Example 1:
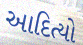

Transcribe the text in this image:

આદિત્યો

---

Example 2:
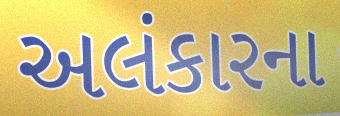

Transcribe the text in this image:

અલંકારના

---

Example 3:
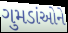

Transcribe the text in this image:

ગુમડાંઓને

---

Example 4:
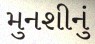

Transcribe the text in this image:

મુનશીનું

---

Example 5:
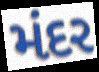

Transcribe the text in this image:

મંદર